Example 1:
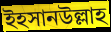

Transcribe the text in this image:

ইহসানউল্লাহ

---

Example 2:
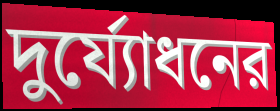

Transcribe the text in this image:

দুর্য্যোধনের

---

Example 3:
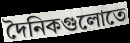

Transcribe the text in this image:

দৈনিকগুলোতে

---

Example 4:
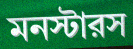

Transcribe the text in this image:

মনস্টারস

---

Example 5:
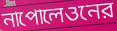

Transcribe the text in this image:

নাপোলেওনের